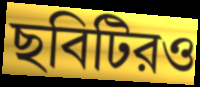
ছবিটিরও